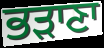
ਭੜਾਣਾ